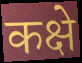
कक्षे